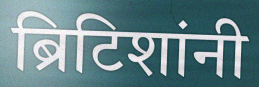
ब्रिटिशांनी